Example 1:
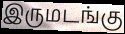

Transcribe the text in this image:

இருமடங்கு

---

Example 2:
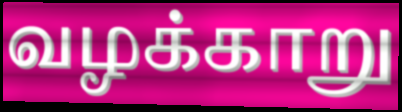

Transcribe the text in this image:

வழக்காறு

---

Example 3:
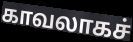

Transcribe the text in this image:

காவலாகச்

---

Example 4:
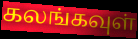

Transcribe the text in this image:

கலங்கவுள்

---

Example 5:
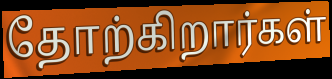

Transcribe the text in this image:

தோற்கிறார்கள்